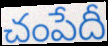
చంపేదీ